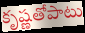
కృష్ణతోపాటు